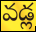
వడ్ల